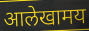
आलेखामय